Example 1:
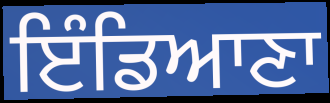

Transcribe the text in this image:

ਇੰਡਿਆਣਾ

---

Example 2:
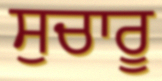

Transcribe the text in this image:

ਸੁਚਾਰੂ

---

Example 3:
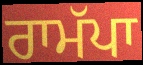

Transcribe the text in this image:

ਰਾਮੱਪਾ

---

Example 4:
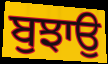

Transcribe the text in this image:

ਬੁਝਾਉ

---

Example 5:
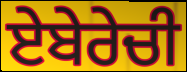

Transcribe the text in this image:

ਏਬੇਰੇਚੀ